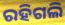
ରହିଗଲି